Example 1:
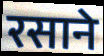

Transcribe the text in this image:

रसाने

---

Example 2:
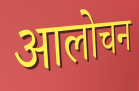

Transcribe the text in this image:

आलोचन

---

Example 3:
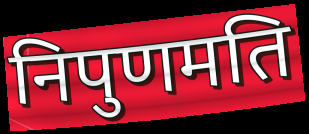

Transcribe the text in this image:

निपुणमति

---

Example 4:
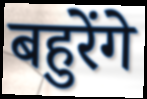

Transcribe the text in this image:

बहुरेंगे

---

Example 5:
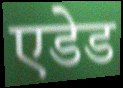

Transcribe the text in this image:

एडेड